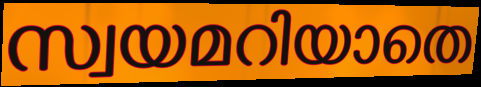
സ്വയമറിയാതെ